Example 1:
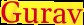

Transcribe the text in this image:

Gurav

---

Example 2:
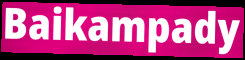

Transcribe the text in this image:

Baikampady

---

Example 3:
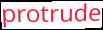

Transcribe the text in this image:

protrude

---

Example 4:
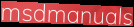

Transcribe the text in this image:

msdmanuals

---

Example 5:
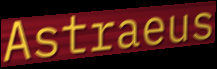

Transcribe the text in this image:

Astraeus